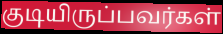
குடியிருப்பவர்கள்